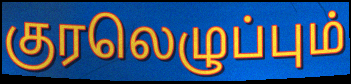
குரலெழுப்பும்